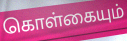
கொள்கையும்